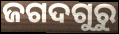
ଜଗଦଗୁରୁ